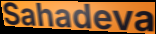
Sahadeva